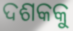
ଦଶକକୁ